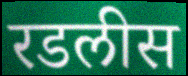
रडलीस